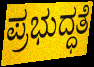
ಪ್ರಭುದ್ಧತೆ